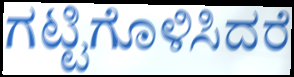
ಗಟ್ಟಿಗೊಳಿಸಿದರೆ